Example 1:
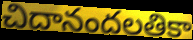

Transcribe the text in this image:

చిదానందలతికా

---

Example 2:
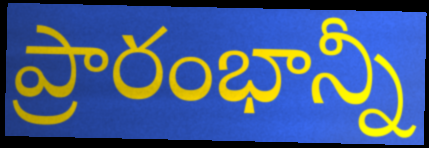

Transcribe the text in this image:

ప్రారంభాన్నీ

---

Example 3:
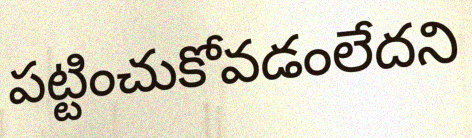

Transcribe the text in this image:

పట్టించుకోవడంలేదని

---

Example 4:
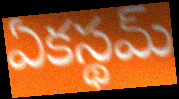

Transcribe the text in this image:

ఏకస్థమ్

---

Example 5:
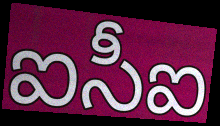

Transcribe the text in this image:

ఐసీఐ